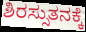
ಶಿರಸ್ಸುತನಕ್ಕೆ